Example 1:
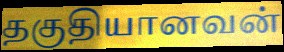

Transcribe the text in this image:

தகுதியானவன்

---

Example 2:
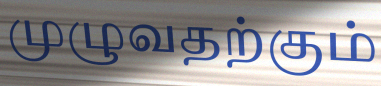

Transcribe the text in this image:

முழுவதற்கும்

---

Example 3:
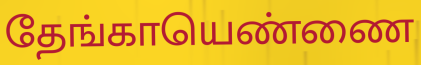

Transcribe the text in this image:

தேங்காயெண்ணை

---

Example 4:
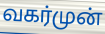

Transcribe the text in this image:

வகர்முன்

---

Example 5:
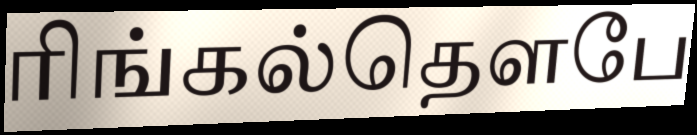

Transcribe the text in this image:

ரிங்கல்தௌபே